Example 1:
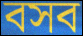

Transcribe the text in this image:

বসব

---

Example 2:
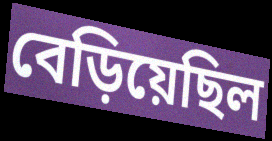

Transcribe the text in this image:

বেড়িয়েছিল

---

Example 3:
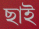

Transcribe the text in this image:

ছাই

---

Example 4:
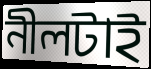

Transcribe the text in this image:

নীলটাই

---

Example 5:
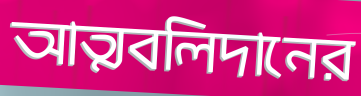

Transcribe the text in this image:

আত্মবলিদানের